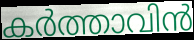
കർത്താവിൻ